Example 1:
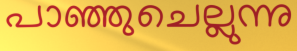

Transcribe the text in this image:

പാഞ്ഞുചെല്ലുന്നു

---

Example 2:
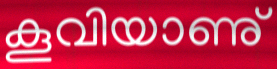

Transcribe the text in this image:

കൂവിയാണു്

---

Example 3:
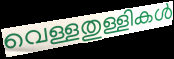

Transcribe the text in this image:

വെള്ളതുള്ളികൾ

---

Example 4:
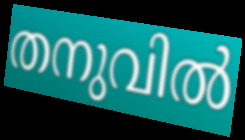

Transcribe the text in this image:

തനുവിൽ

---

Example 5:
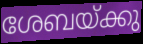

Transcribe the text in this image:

ശേബയ്ക്കു